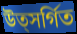
উত্সর্গিত